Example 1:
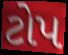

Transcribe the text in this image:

ટોપ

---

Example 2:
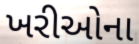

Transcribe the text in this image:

ખરીઓના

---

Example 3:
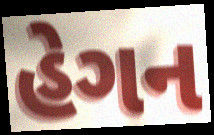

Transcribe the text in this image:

હેગન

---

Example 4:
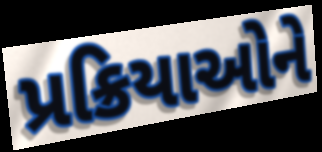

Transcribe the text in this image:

પ્રક્રિયાઓને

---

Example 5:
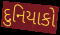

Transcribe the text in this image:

દુનિયાકો